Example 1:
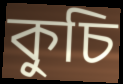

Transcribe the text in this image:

কুচি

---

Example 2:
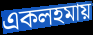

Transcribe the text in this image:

একলহমায়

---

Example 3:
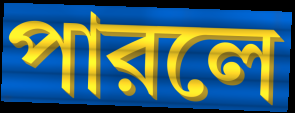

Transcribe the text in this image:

পারলে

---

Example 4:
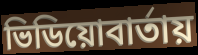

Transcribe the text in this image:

ভিডিয়োবার্তায়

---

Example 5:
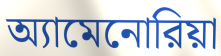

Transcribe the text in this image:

অ্যামেনোরিয়া